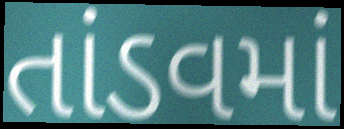
તાંડવમાં